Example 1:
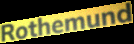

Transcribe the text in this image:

Rothemund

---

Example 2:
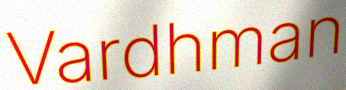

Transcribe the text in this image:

Vardhman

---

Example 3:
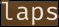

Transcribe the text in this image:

laps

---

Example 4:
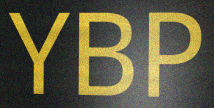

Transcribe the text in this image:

YBP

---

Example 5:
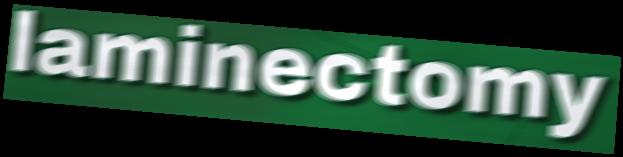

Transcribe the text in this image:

laminectomy